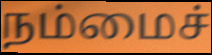
நம்மைச்